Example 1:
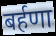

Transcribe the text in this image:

बर्हणा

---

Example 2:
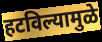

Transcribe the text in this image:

हटविल्यामुळे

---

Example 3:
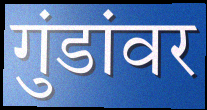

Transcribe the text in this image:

गुंडांवर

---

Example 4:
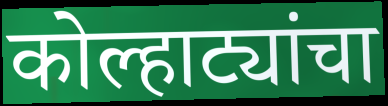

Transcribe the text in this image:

कोल्हाट्यांचा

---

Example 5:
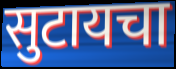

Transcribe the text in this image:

सुटायचा